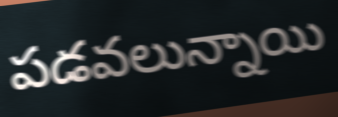
పడవలున్నాయి